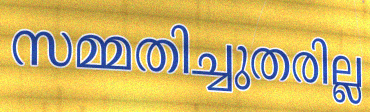
സമ്മതിച്ചുതരില്ല